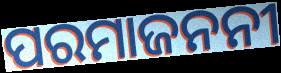
ପରମାଜନନୀ